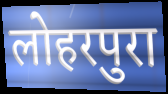
लोहरपुरा